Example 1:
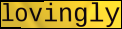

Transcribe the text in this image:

lovingly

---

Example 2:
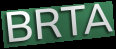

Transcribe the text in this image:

BRTA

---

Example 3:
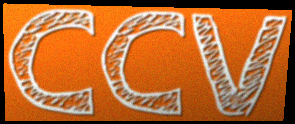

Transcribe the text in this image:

CCV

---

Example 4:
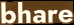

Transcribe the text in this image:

bhare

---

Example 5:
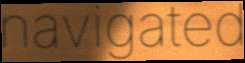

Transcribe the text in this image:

navigated